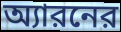
অ্যারনের